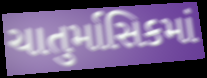
ચાતુર્માસિકમાં